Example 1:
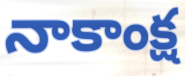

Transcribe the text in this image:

నాకాంక్ష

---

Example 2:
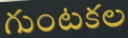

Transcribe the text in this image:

గుంటకల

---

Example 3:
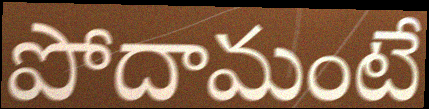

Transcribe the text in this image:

పోదామంటే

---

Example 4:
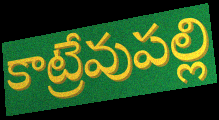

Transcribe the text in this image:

కాట్రేవుపల్లి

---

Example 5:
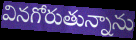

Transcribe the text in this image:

వినగోరుతున్నాను